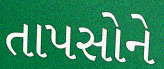
તાપસોને